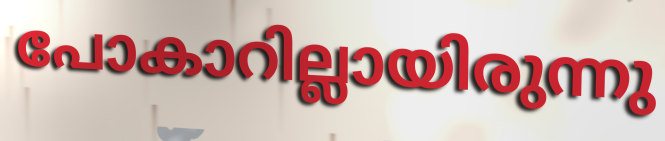
പോകാറില്ലായിരുന്നു